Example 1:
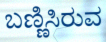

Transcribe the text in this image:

ಬಣ್ಣಿಸಿರುವ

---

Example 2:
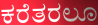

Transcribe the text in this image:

ಕರೆತರಲೂ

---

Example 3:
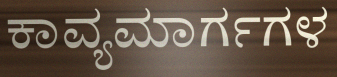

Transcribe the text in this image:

ಕಾವ್ಯಮಾರ್ಗಗಳ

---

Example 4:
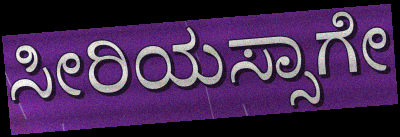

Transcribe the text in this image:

ಸೀರಿಯಸ್ಸಾಗೇ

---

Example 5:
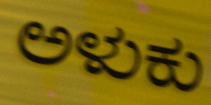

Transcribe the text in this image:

ಅಳುಕು